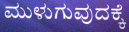
ಮುಳುಗುವುದಕ್ಕೆ